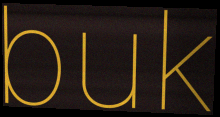
buk